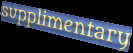
supplimentary